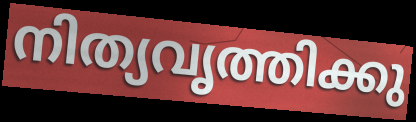
നിത്യവൃത്തിക്കു